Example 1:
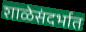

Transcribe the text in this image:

शाळेसंदर्भात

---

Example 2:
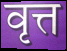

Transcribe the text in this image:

वृत्त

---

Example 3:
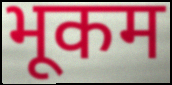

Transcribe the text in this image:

भूकम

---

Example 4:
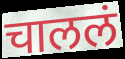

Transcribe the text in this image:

चाललं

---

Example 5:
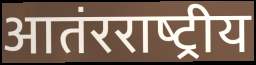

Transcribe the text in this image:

आतंरराष्ट्रीय